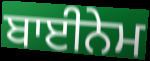
ਬਾਈਨੇਮ